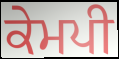
ਕੇਮਪੀ